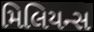
મિલિયન્સ